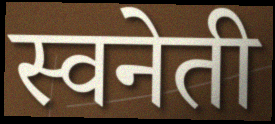
स्वनेती